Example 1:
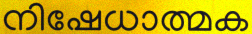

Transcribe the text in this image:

നിഷേധാത്മക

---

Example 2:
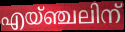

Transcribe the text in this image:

എയ്ഞ്ചലിന്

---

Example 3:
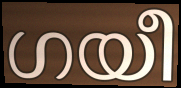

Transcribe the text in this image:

ഗയീ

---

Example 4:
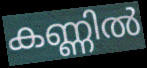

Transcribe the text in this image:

കണ്ണിൽ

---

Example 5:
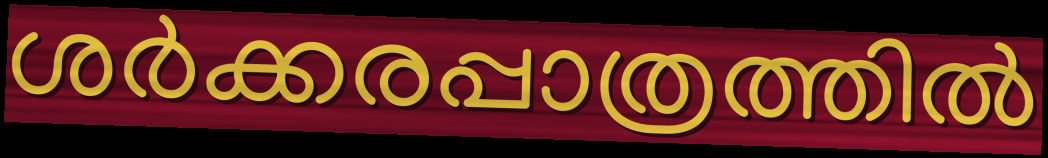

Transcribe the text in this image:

ശർക്കരപ്പാത്രത്തിൽ